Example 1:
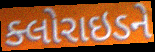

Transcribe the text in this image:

ક્લોરાઇડને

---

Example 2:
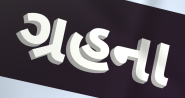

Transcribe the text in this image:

ગ્રહના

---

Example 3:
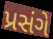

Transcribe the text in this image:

પ્રસંગે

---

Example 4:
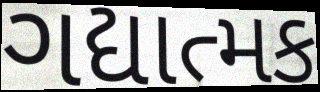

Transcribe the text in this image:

ગદ્યાત્મક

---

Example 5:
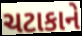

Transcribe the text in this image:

ચટાકાને